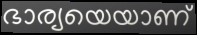
ഭാര്യയെയാണ്